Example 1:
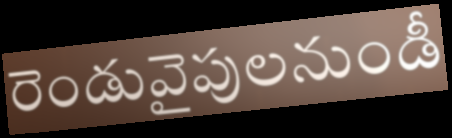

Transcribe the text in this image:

రెండువైపులనుండీ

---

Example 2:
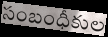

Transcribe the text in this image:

సంబంధీకుల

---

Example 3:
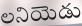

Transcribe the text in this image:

లనియెడు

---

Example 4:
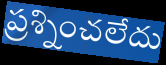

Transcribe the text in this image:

ప్రశ్నించలేదు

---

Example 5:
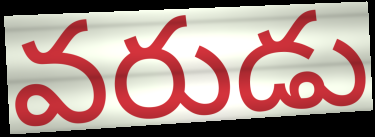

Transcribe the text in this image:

వరుడు